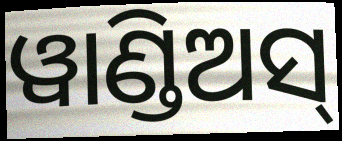
ୱାଣ୍ଡିଅସ୍